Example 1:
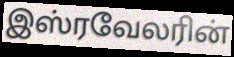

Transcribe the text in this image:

இஸ்ரவேலரின்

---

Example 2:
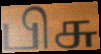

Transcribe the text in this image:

பிசு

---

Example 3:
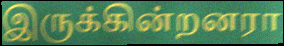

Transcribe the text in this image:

இருக்கின்றனரா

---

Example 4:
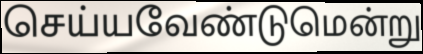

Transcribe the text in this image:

செய்யவேண்டுமென்று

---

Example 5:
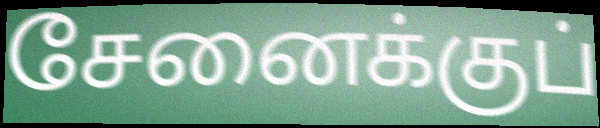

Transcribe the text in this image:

சேனைக்குப்